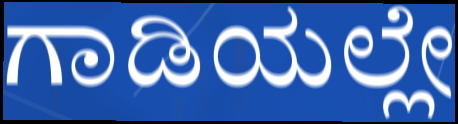
ಗಾಡಿಯಲ್ಲೇ